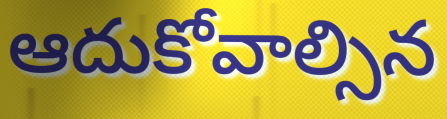
ఆదుకోవాల్సిన